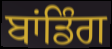
ਬਾਂਡਿੰਗ